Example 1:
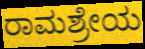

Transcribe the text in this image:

ರಾಮಶ್ರೇಯ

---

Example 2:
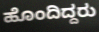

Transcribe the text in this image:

ಹೊಂದಿದ್ದರು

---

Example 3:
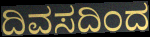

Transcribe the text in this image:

ದಿವಸದಿಂದ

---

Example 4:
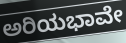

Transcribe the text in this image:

ಅರಿಯಭಾವೇ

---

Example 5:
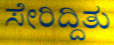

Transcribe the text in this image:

ಸೇರಿದ್ದಿತು